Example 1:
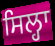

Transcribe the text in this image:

ਸਿਲ੍ਹਾ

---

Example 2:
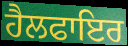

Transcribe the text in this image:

ਹੈਲਫਾਇਰ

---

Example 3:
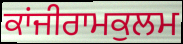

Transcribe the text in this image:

ਕਾਂਜੀਰਾਮਕੁਲਮ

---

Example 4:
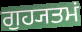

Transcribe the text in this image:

ਗੁਹ੍ਯਤਮਂ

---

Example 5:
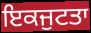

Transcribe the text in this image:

ਇਕਜੁਟਤਾ